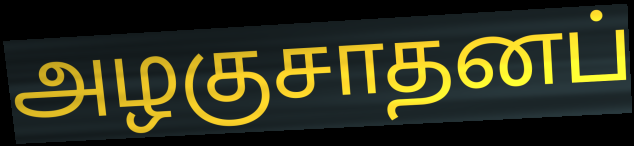
அழகுசாதனப்